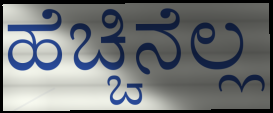
ಹೆಚ್ಚಿನೆಲ್ಲ